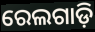
ରେଲଗାଡ଼ି